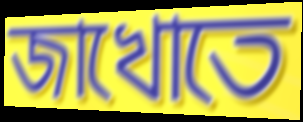
জাখোতে